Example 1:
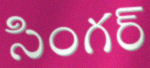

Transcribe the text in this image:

సింగర్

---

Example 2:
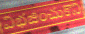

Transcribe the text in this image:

విభజించుకొని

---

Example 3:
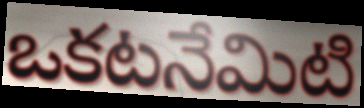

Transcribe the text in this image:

ఒకటనేమిటి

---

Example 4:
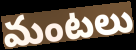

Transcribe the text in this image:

మంటలు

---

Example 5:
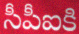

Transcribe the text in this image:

సీపీఐకి